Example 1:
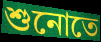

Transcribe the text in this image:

শুনোতে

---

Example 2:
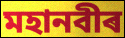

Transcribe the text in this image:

মহানবীৰ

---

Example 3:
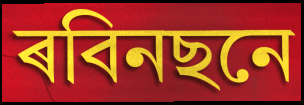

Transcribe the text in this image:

ৰবিনছনে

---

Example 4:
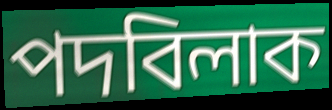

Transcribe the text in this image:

পদবিলাক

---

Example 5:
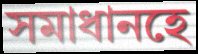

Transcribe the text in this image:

সমাধানহে